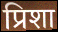
प्रिशा